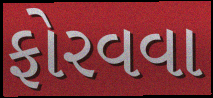
ફોરવવા